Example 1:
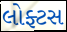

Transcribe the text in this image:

લોફ્ટસ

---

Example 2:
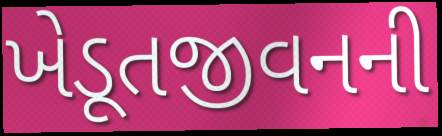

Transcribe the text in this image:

ખેડૂતજીવનની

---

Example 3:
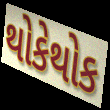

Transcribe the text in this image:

થોકેથોક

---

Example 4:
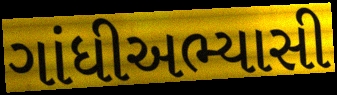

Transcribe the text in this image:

ગાંધીઅભ્યાસી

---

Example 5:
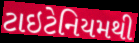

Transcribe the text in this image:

ટાઇટેનિયમથી